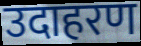
उदाहरण